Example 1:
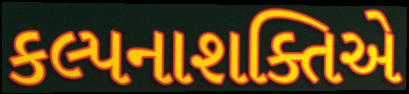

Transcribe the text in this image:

કલ્પનાશક્તિએ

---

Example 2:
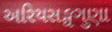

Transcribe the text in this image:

અરિયસઙ્ઘગુણા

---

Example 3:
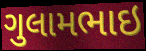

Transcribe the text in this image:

ગુલામભાઇ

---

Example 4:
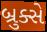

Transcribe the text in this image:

બ્રુક્સે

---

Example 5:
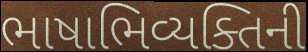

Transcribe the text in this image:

ભાષાભિવ્યક્તિની